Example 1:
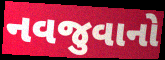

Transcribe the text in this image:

નવજુવાનો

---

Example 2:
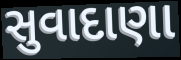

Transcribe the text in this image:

સુવાદાણા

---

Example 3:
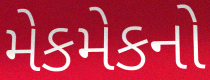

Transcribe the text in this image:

મેકમેકનો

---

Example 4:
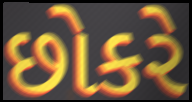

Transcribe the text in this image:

છોકરે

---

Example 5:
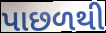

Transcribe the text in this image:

પાછળથી